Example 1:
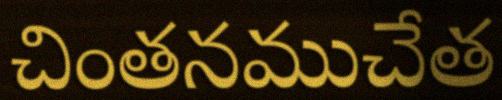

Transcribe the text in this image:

చింతనముచేత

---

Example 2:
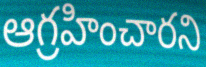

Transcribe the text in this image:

ఆగ్రహించారని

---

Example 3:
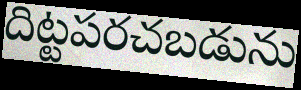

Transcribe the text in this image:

దిట్టపరచబడును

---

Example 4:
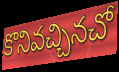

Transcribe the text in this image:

కొనివచ్చినచో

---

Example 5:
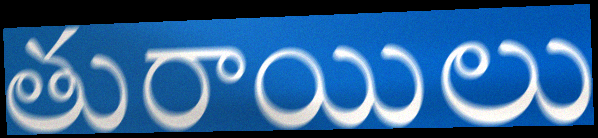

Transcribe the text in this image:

తురాయిలు